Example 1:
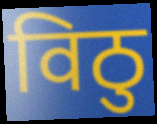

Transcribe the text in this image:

विठु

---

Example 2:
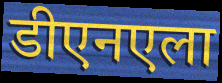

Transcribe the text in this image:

डीएनएला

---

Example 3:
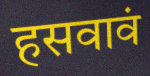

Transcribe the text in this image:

हसवावं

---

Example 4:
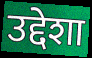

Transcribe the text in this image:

उद्देशा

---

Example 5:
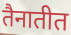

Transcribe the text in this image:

तैनातीत